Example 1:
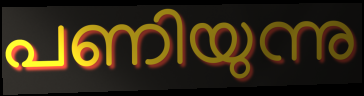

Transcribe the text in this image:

പണിയുന്നു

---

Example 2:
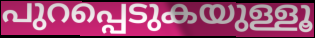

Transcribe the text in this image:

പുറപ്പെടുകയുള്ളൂ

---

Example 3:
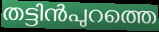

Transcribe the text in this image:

തട്ടിൻപുറത്തെ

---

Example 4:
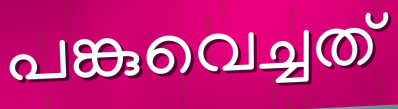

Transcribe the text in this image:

പങ്കുവെച്ചത്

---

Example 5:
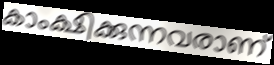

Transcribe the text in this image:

കാംക്ഷിക്കുന്നവരാണ്